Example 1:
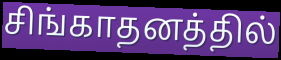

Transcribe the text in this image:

சிங்காதனத்தில்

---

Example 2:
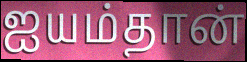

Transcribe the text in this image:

ஐயம்தான்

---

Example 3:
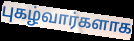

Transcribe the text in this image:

புகழ்வார்களாக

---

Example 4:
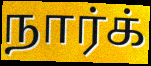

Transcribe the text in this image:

நார்க்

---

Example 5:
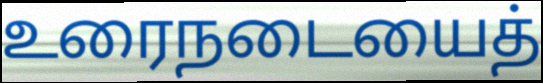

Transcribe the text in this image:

உரைநடையைத்